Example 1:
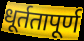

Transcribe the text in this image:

धूर्ततापूर्ण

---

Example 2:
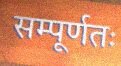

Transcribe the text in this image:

सम्पूर्णतः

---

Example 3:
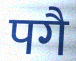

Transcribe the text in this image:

पगै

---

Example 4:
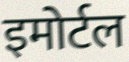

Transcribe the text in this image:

इमोर्टल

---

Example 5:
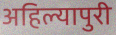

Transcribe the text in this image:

अहिल्यापुरी